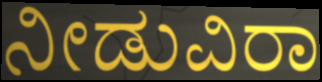
ನೀಡುವಿರಾ